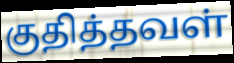
குதித்தவள்